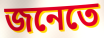
জনেতে